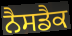
ਨੈਸਡੈਕ